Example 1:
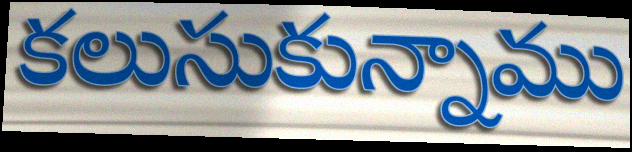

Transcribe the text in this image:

కలుసుకున్నాము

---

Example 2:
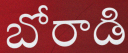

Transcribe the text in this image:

బోరాడి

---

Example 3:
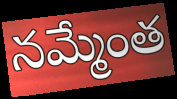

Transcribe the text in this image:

నమ్మేంత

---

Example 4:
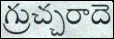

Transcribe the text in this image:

గ్రుచ్చరాదె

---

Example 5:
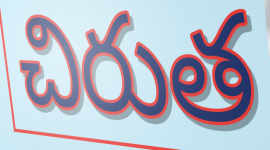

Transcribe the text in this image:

చిరుత